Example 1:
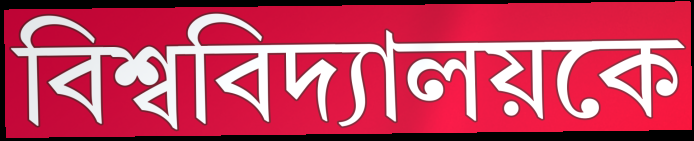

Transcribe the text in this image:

বিশ্ববিদ্যালয়কে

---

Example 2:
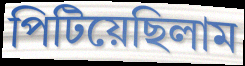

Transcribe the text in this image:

পিটিয়েছিলাম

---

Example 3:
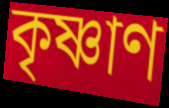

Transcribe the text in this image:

কৃষ্ণাণ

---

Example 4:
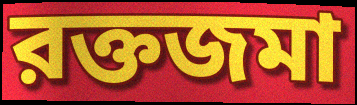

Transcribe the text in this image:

রক্তজমা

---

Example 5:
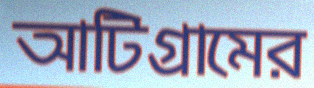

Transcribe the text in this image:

আটিগ্রামের